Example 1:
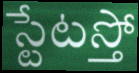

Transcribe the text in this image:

స్టేటస్తో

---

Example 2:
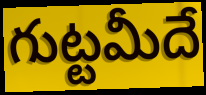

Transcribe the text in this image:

గుట్టమీదే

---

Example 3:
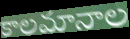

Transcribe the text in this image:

కాలమానాల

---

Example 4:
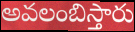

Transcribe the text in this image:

అవలంబిస్తారు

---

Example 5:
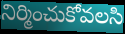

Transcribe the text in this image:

నిర్మించుకోవలసి